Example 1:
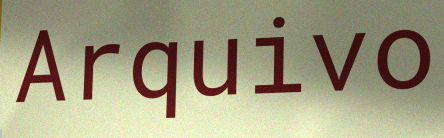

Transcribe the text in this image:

Arquivo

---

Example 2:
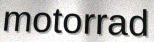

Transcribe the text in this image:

motorrad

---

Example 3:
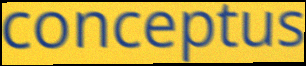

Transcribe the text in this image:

conceptus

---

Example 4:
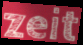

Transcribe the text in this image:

zeit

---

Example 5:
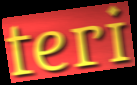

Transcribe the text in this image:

teri